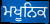
ਮਖੂਨਿਕ